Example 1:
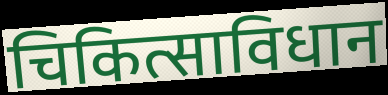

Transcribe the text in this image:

चिकित्साविधान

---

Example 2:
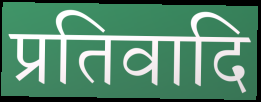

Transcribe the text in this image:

प्रतिवादि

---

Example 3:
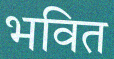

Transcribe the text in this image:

भवित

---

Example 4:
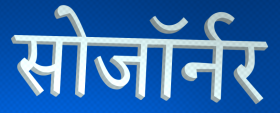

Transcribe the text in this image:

सोजॉर्नर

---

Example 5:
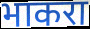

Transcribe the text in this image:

भाकरा